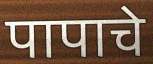
पापाचे